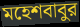
মহেশবাবুর